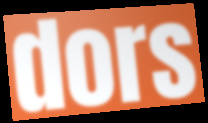
dors